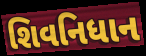
શિવનિધાન